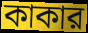
কাকার